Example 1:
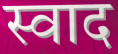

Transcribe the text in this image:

स्वाद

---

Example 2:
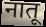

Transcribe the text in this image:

नातू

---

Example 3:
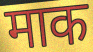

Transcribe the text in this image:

माक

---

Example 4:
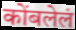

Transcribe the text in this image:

कोंबलेलं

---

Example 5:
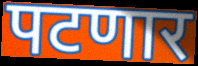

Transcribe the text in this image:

पटणार